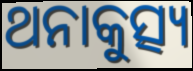
ଥନାକୁତ୍ସ୍ୟ